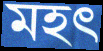
মহত্‍